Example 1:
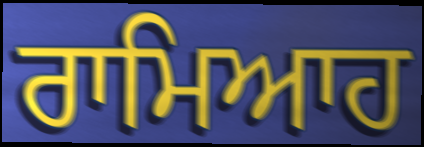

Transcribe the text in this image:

ਰਾਮਿਆਹ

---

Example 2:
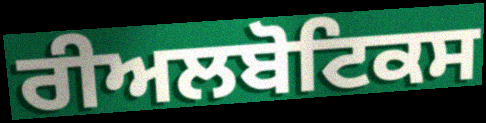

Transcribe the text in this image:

ਰੀਅਲਬੋਟਿਕਸ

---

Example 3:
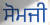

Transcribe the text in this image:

ਸੋਮਜੀ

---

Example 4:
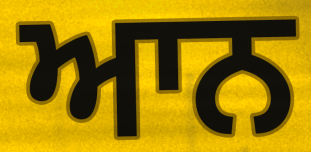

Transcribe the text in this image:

ਆਨ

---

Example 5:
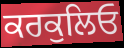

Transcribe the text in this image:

ਕਰਕੁਲਿਓ